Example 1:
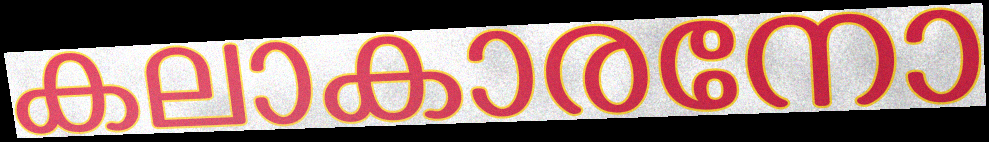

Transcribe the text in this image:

കലാകാരനോ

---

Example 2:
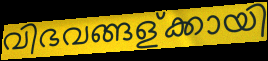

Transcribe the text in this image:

വിഭവങ്ങള്ക്കായി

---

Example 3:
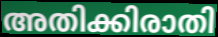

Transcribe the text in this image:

അതിക്കിരാതി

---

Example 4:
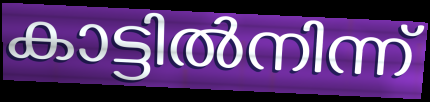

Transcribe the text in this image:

കാട്ടിൽനിന്ന്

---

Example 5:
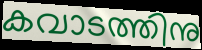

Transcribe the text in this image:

കവാടത്തിനു